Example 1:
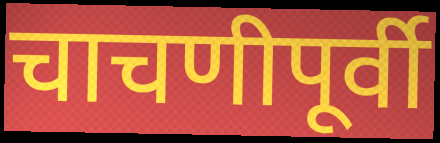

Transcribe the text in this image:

चाचणीपूर्वी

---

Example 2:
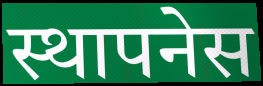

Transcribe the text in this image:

स्थापनेस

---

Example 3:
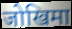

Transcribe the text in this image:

जोखिमा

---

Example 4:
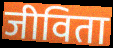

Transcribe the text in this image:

जीविता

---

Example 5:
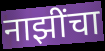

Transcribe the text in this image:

नाझींचा